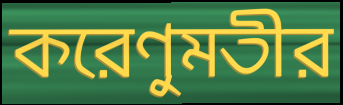
করেণুমতীর